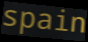
spain